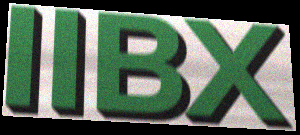
IIBX